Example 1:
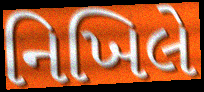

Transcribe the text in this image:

નિખિલે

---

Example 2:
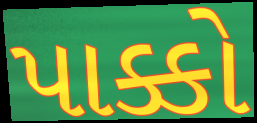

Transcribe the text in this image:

પાક્કો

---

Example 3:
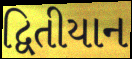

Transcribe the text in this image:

દ્વિતીયાન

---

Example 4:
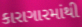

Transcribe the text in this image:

કારાગારમાંથી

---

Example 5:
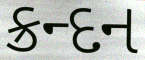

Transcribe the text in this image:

ક્રન્દન